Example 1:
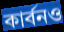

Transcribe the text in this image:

কার্বনও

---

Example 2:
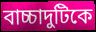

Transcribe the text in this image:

বাচ্চাদুটিকে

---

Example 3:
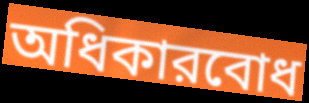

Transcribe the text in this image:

অধিকারবোধ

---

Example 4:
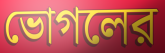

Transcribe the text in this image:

ভোগলের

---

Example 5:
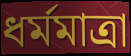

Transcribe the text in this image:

ধর্মমাত্রা